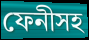
ফেনীসহ